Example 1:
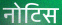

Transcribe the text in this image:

नोटिस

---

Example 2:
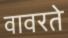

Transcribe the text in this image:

वावरते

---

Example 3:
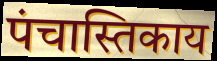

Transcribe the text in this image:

पंचास्तिकाय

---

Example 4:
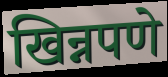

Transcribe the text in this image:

खिन्नपणे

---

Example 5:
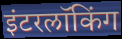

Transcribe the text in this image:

इंटरलॉकिंग